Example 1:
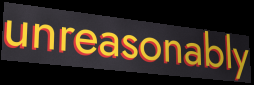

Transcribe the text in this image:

unreasonably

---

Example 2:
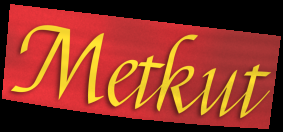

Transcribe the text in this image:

Metkut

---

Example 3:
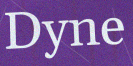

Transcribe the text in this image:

Dyne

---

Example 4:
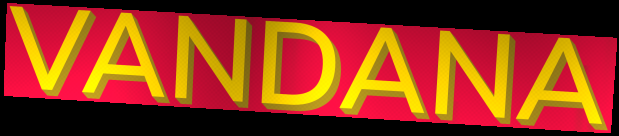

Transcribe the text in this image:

VANDANA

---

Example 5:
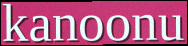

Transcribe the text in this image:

kanoonu